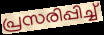
പ്രസരിപ്പിച്ച്